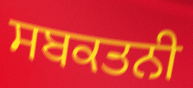
ਸਬਕਤਨੀ